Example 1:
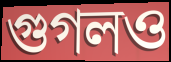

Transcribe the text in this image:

গুগলও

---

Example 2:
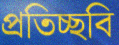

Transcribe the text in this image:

প্রতিচ্ছবি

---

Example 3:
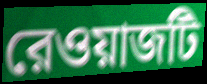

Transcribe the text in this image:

রেওয়াজটি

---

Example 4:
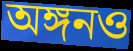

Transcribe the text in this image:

অঙ্গনও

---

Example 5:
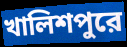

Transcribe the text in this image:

খালিশপুরে